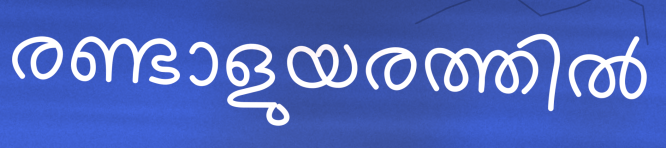
രണ്ടാളുയരത്തിൽ